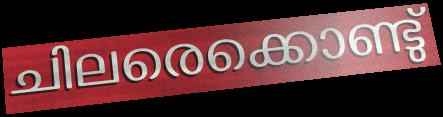
ചിലരെക്കൊണ്ടു്